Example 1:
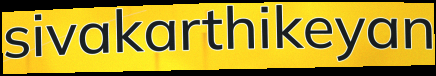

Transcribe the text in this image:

sivakarthikeyan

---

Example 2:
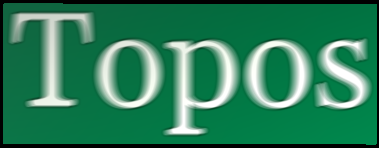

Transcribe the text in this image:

Topos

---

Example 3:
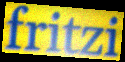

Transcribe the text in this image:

fritzi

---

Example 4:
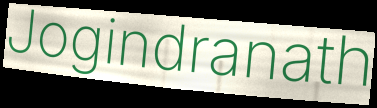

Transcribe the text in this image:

Jogindranath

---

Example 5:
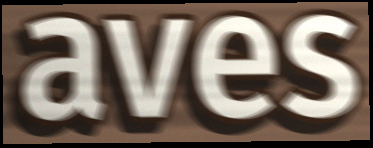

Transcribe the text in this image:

aves